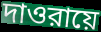
দাওরায়ে